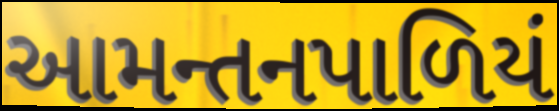
આમન્તનપાળિયં